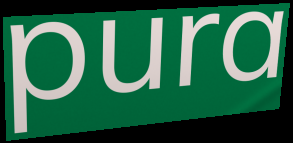
pura